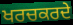
ਖਰਚਕਰਦੇ